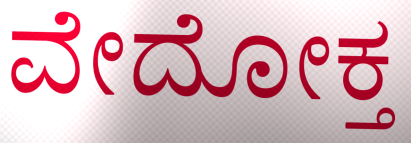
ವೇದೋಕ್ತ